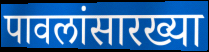
पावलांसारख्या